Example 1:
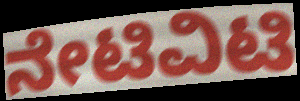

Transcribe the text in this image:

ನೇಟಿವಿಟಿ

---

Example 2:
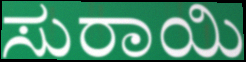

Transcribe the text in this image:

ಸುರಾಯಿ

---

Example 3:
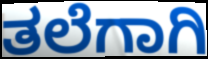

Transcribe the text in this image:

ತಲೆಗಾಗಿ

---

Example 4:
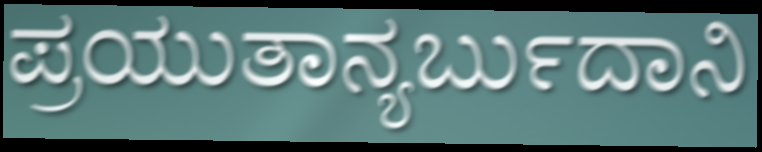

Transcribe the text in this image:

ಪ್ರಯುತಾನ್ಯರ್ಬುದಾನಿ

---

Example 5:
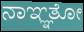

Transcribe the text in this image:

ನಾಞ್ಞತೋ